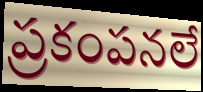
ప్రకంపనలే